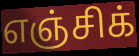
எஞ்சிக்